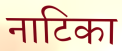
नाटिका